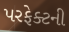
પરફેક્ટની